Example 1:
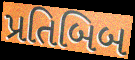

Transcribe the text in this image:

પ્રતિબિબ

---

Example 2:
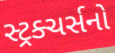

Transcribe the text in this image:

સ્ટ્રક્ચર્સનો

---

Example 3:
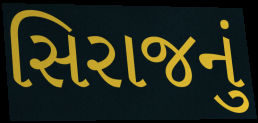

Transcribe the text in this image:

સિરાજનું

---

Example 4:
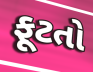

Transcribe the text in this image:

ફૂટતો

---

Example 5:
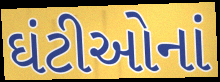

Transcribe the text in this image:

ઘંટીઓનાં